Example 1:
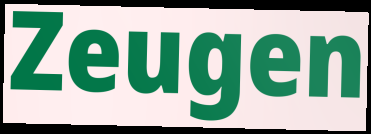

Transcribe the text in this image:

Zeugen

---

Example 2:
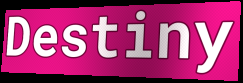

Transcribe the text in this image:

Destiny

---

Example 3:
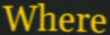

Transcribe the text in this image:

Where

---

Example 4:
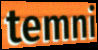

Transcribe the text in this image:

temni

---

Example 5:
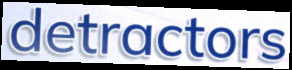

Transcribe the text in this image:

detractors